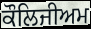
ਕੌਲਿਜੀਅਮ